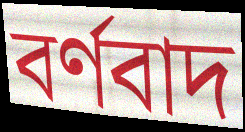
বর্ণবাদ